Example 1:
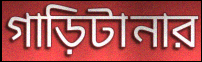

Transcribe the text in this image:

গাড়িটানার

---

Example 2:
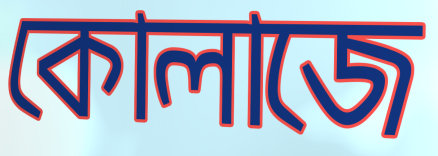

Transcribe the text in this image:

কোলাজে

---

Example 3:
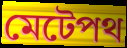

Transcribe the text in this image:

মেটেপথ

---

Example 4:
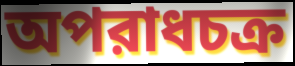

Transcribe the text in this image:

অপরাধচক্র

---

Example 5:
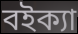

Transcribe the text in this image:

বইক্যা